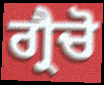
ਗ੍ਰੈਚੋ